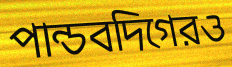
পান্ডবদিগেরও